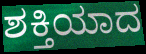
ಶಕ್ತಿಯಾದ